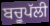
ਬਚੂਪੱਲੀ